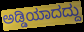
ಅಡ್ಡಿಯಾದದ್ದು